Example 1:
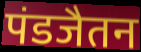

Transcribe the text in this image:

पंडजैतन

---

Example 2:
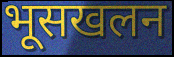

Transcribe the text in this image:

भूसखलन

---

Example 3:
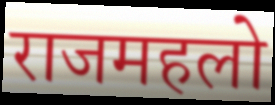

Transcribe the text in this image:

राजमहलो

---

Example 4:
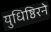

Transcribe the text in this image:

युधिष्ठिरने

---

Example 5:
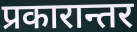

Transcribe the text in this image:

प्रकारान्तर